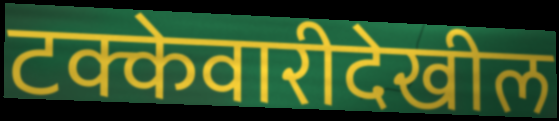
टक्केवारीदेखील